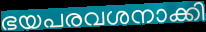
ഭയപരവശനാക്കി